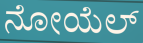
ನೋಯೆಲ್